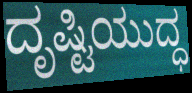
ದೃಷ್ಟಿಯುದ್ಧ